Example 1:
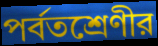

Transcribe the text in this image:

পর্বতশ্রেণীর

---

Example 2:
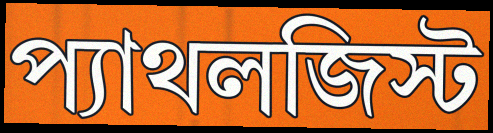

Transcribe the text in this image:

প্যাথলজিস্ট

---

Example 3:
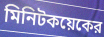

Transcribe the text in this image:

মিনিটকয়েকের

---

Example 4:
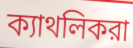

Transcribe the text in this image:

ক্যাথলিকরা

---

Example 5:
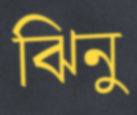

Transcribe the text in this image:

ঝিনু